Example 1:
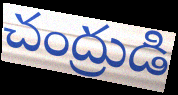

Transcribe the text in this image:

చంద్రుడి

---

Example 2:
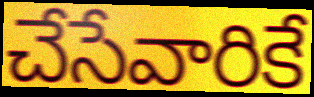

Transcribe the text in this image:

చేసేవారికే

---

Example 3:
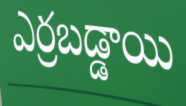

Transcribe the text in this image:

ఎర్రబడ్డాయి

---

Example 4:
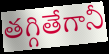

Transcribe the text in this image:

తగ్గితేగానీ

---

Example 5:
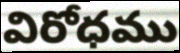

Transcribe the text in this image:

విరోధము